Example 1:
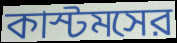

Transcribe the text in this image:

কাস্টমসের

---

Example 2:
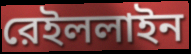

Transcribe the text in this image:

রেইললাইন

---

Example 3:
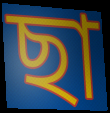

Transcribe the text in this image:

ছা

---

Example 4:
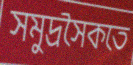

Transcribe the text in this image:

সমুদ্রসৈকতে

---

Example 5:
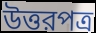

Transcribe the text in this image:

উত্তরপত্র